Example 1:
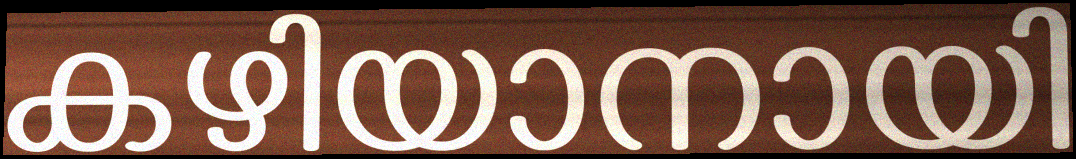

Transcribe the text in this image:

കഴിയാനായി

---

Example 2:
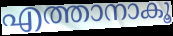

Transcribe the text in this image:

എത്താനാകൂ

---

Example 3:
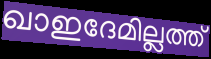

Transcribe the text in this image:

ഖാഇദേമില്ലത്ത്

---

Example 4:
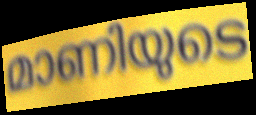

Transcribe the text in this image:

മാണിയുടെ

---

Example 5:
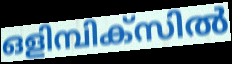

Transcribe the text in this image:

ഒളിമ്പിക്സിൽ